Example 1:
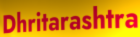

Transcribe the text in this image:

Dhritarashtra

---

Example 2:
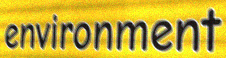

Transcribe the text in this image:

environment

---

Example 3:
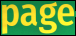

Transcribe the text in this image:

page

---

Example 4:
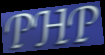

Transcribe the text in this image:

PHP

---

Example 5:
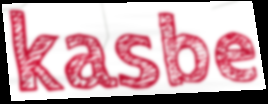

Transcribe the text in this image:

kasbe